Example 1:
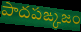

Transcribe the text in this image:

పాదపఙ్కజం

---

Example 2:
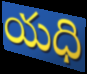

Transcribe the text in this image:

యధి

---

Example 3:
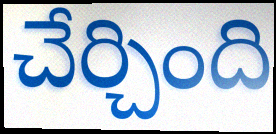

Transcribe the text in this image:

చేర్చింది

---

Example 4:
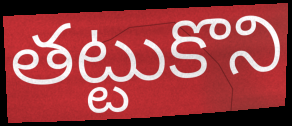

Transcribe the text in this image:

తట్టుకొని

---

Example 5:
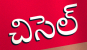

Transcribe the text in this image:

చిసెల్